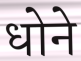
धोने